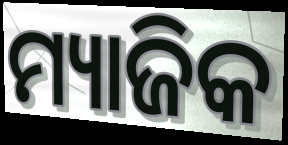
ମ୍ୟାଜିକ